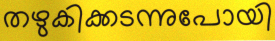
തഴുകിക്കടന്നുപോയി